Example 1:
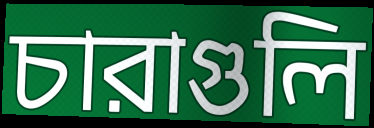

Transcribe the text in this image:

চারাগুলি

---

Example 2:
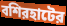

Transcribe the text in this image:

বশিরহাটের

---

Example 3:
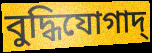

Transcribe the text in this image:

বুদ্ধিযোগাদ্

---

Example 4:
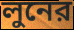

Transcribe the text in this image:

লুনের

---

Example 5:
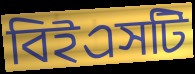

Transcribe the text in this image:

বিইএসটি